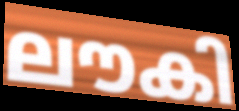
ലൗകി